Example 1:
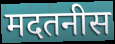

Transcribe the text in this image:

मदतनीस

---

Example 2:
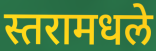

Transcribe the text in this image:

स्तरामधले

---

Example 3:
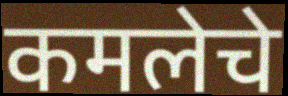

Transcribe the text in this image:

कमलेचे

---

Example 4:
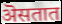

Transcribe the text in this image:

ऄसतात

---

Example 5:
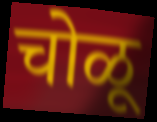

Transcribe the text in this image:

चोळू